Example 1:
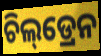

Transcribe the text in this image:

ଚିଲ୍‌ଡ୍ରେନ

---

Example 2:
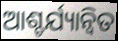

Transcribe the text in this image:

ଆଶ୍ଚର୍ଯ୍ୟାନ୍ୱିତ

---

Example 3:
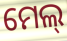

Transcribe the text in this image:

ମେଲ୍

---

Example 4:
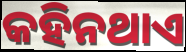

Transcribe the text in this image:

କହିନଥାଏ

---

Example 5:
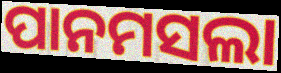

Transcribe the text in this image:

ପାନମସଲା